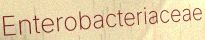
Enterobacteriaceae